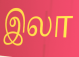
இலா